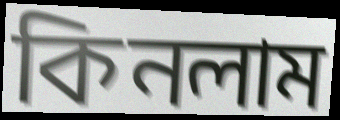
কিনলাম